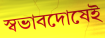
স্বভাবদোষেই